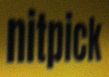
nitpick